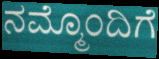
ನಮ್ಮೊಂದಿಗೆ